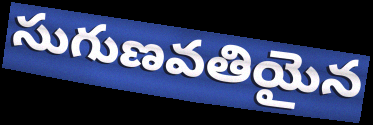
సుగుణవతియైన